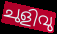
ചുളിവു